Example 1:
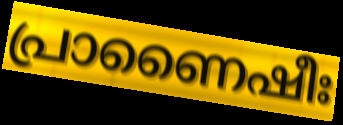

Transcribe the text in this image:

പ്രാണൈഷീഃ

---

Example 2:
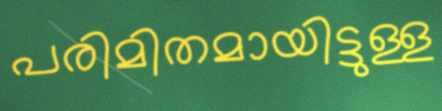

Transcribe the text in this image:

പരിമിതമായിട്ടുള്ള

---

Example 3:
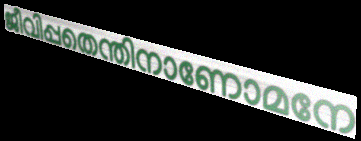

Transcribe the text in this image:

ജീവിപ്പതെന്തിനാണോമനേ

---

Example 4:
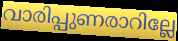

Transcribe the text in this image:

വാരിപ്പുണരാറില്ലേ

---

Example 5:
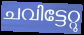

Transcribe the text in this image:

ചവിട്ടേറ്റു